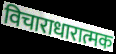
विचाराधारात्मक